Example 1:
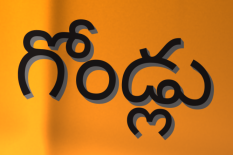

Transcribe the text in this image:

గోండ్లు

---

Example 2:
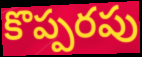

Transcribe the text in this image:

కొప్పరపు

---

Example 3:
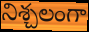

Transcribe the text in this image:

నిశ్చలంగా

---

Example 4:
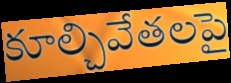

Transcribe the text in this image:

కూల్చివేతలపై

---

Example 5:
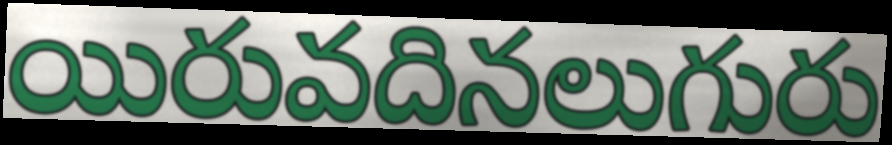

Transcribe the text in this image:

యిరువదినలుగురు